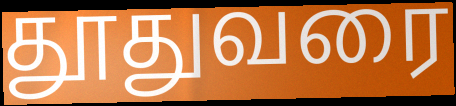
தூதுவரை